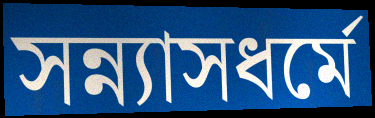
সন্ন্যাসধর্মে